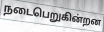
நடைபெறுகின்றன